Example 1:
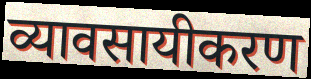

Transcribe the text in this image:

व्यावसायीकरण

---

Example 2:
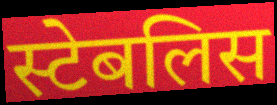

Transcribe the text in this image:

स्टेबलिस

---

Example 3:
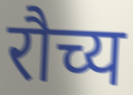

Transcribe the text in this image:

रौच्य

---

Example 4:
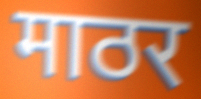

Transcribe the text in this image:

माठर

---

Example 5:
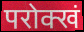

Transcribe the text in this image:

परोक्खं